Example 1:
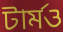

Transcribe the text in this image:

টার্মও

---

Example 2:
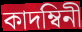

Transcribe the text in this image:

কাদম্বিনী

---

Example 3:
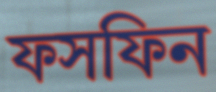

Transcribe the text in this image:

ফসফিন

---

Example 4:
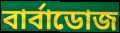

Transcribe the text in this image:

বার্বাডোজ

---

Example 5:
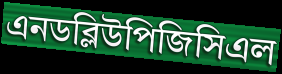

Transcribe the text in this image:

এনডব্লিউপিজিসিএল